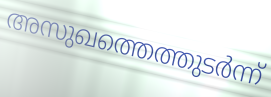
അസുഖത്തെത്തുടർന്ന്